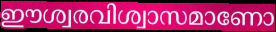
ഈശ്വരവിശ്വാസമാണോ